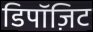
डिपॉज़िट